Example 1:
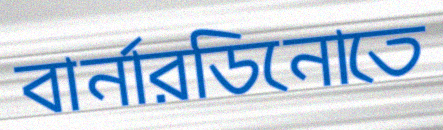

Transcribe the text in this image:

বার্নারডিনোতে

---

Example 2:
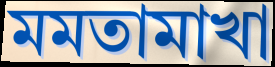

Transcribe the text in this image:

মমতামাখা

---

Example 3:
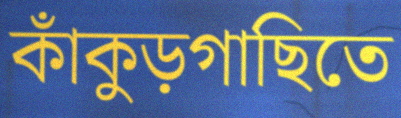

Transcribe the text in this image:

কাঁকুড়গাছিতে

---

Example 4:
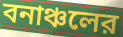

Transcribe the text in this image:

বনাঞ্চলের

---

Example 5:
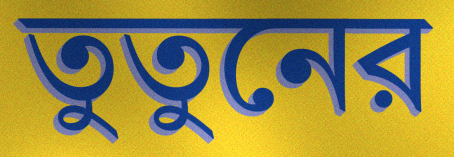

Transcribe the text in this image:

তুতুনের